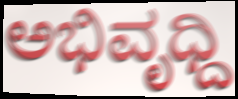
ಅಭಿವೃಧ್ದಿ